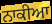
ਨਾਕੀਆ